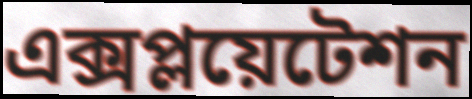
এক্সপ্লয়েটেশন